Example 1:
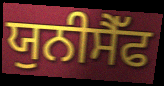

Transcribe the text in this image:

ਯੁਨੀਸੈੱਫ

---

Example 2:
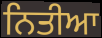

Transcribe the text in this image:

ਨਿਤੀਆ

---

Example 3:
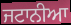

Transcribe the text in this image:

ਜਟਾਨੀਆ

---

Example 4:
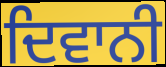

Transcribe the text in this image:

ਦਿਵਾਨੀ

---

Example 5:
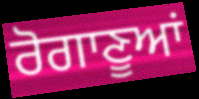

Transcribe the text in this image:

ਰੋਗਾਣੂਆਂ